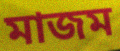
মাজম